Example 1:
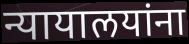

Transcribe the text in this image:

न्यायालयांना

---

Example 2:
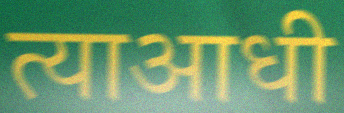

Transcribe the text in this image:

त्याआधी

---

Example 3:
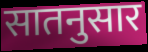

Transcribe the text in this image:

सातनुसार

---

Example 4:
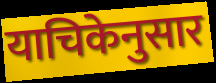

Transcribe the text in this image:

याचिकेनुसार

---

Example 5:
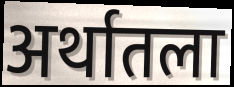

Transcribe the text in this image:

अर्थातला